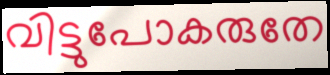
വിട്ടുപോകരുതേ